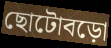
ছোটোবড়ো